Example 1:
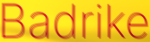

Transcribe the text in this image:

Badrike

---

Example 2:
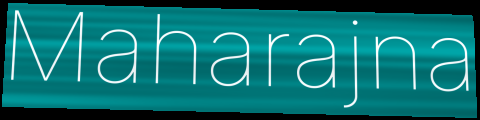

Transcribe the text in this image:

Maharajna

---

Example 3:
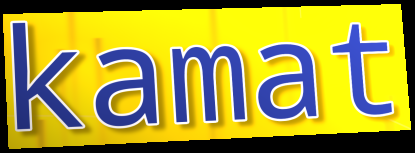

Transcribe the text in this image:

kamat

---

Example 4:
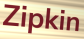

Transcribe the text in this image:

Zipkin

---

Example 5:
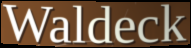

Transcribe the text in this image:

Waldeck